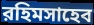
রহিমসাহেব